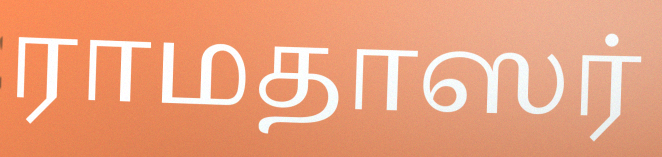
ராமதாஸர்